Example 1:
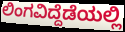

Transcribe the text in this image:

ಲಿಂಗವಿದ್ದೆಡೆಯಲ್ಲಿ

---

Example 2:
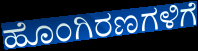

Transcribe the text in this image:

ಹೊಂಗಿರಣಗಳಿಗೆ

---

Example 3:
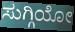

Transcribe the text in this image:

ಸುಗ್ಗಿಯೋ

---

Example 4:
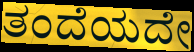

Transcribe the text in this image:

ತಂದೆಯದೇ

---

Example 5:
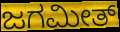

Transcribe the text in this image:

ಜಗಮೀತ್